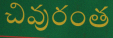
చివురంత